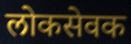
लोकसेवक